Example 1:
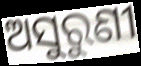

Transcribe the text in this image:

ଅସୁରୁଣୀ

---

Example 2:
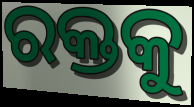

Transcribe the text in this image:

ରକ୍ତକୁ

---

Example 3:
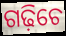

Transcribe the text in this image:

ଗଢ଼ିଚେ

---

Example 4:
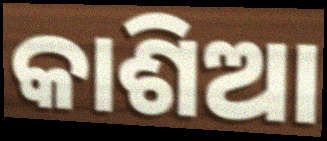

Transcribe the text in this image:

କାଶିଆ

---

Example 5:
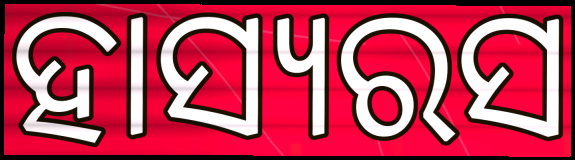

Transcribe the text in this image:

ହାସ୍ୟରସ